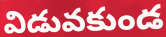
విడువకుండ